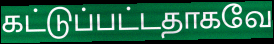
கட்டுப்பட்டதாகவே